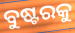
ବୁଷ୍ଟରକୁ